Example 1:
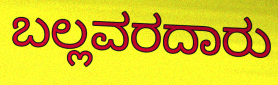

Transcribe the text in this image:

ಬಲ್ಲವರದಾರು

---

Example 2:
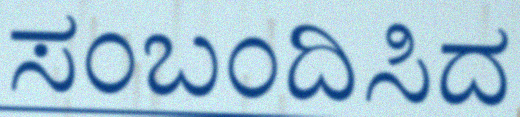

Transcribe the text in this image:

ಸಂಬಂದಿಸಿದ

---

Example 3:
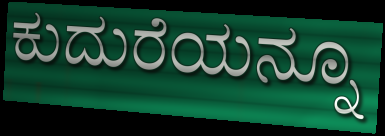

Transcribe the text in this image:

ಕುದುರೆಯನ್ನೂ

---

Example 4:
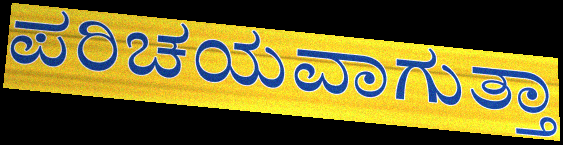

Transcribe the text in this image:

ಪರಿಚಯವಾಗುತ್ತಾ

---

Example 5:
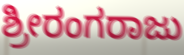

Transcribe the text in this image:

ಶ್ರೀರಂಗರಾಜು